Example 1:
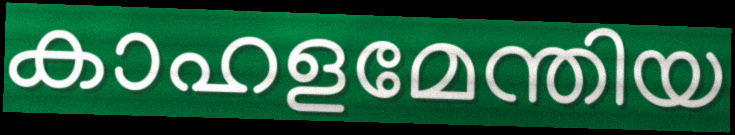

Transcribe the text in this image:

കാഹളമേന്തിയ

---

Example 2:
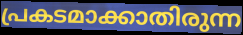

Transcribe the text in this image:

പ്രകടമാക്കാതിരുന്ന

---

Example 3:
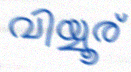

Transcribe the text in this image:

വിയ്യൂര്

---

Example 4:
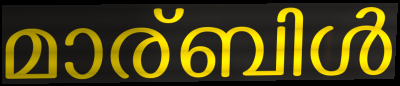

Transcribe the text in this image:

മാര്ബിൾ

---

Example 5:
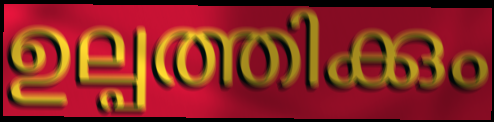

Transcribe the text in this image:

ഉല്പത്തിക്കും